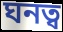
ঘনত্ব